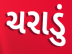
ચરાડું